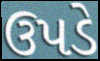
ઉપડે